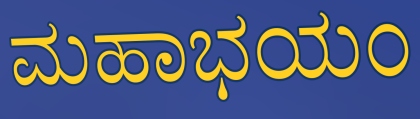
ಮಹಾಭಯಂ